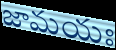
జామయః